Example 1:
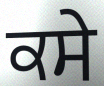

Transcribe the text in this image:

ਕਸੇ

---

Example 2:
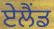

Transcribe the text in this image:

ਏਲੈਂਡ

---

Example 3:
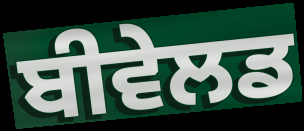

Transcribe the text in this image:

ਬੀਵੇਲਡ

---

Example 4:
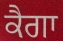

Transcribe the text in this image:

ਕੈਗਾ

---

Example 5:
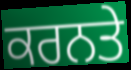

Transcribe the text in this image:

ਕਰਨਤੇ